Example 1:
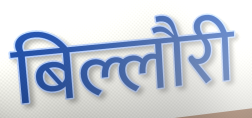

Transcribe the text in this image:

बिल्लौरी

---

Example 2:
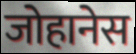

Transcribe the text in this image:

जोहानेस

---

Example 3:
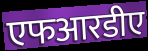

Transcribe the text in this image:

एफआरडीए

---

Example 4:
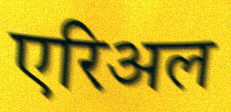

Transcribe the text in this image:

एरिअल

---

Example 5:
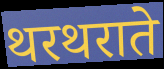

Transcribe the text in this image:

थरथराते